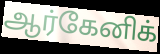
ஆர்கேனிக்